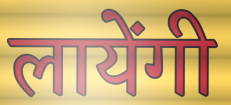
लायेंगी